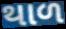
થાળ